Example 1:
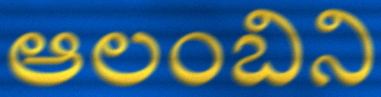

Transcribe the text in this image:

ఆలంబిని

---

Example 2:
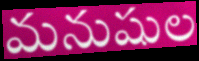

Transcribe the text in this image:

మనుషుల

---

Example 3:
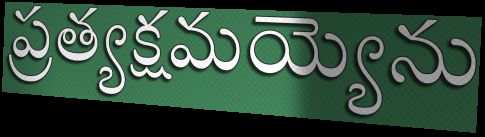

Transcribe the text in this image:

ప్రత్యక్షమయ్యెను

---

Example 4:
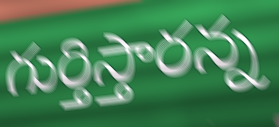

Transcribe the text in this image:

గుర్తిస్తారన్న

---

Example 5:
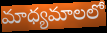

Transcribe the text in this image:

మాధ్యమాలలో